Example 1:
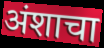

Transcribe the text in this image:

अंशाचा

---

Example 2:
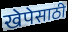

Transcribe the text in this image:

खेपेसाठी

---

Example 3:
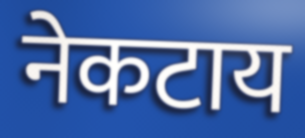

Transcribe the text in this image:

नेकटाय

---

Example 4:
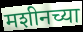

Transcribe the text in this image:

मशीनच्या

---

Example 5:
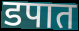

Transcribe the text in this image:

डपात